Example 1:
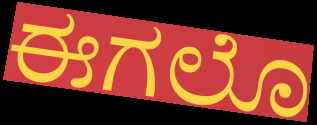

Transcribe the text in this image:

ಈಗಲೊ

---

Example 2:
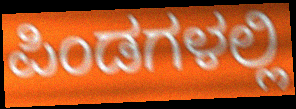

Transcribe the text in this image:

ಪಿಂಡಗಳಲ್ಲಿ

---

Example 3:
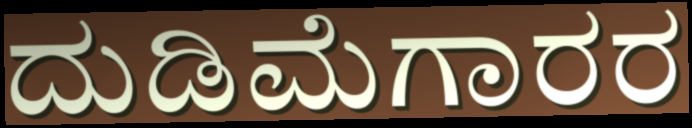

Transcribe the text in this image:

ದುಡಿಮೆಗಾರರ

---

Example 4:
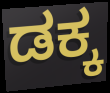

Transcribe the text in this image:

ಡಕ್ಕ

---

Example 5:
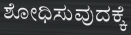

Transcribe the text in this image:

ಶೋಧಿಸುವುದಕ್ಕೆ